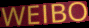
WEIBO